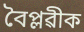
বৈপ্লৱীক